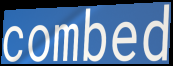
combed